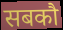
सबकौ